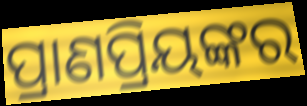
ପ୍ରାଣପ୍ରିୟଙ୍କର